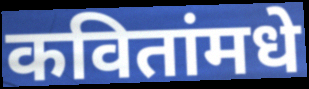
कवितांमधे